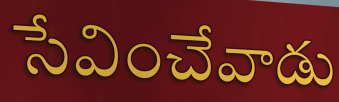
సేవించేవాడు